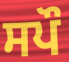
ਸਪੌ